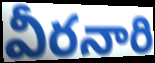
వీరనారి